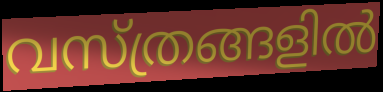
വസ്ത്രങ്ങളിൽ